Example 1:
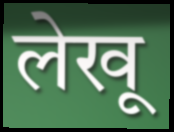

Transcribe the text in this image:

लेखू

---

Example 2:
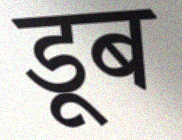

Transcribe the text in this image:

डूब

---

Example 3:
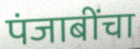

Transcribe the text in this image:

पंजाबींचा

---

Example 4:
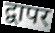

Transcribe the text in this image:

द्वापर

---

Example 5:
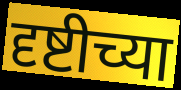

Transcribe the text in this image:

दृष्टीच्या